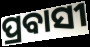
ପ୍ରବାସୀ